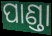
ପାଣ୍ଡା